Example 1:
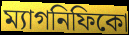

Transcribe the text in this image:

ম্যাগনিফিকো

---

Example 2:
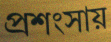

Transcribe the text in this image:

প্রশংসায়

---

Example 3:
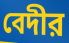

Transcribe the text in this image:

বেদীর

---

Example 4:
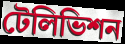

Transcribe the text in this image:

টেলিভিশন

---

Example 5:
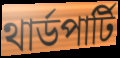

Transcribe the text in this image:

থার্ডপার্টি